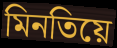
মিনতিয়ে